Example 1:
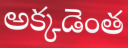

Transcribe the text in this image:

అక్కడెంత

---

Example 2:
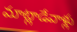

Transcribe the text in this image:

మాట్లాడేవాళ్లు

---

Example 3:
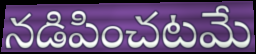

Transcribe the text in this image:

నడిపించటమే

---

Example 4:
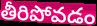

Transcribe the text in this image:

తీరిపోవడం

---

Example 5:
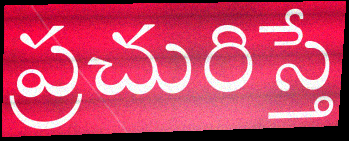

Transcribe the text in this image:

ప్రచురిస్తే